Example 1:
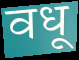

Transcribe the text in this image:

वधू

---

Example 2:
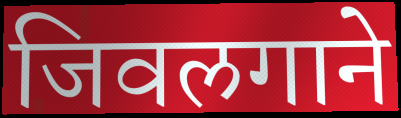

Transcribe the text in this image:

जिवलगाने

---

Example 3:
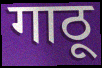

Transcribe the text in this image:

गाठू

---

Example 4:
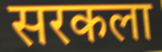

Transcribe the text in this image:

सरकला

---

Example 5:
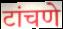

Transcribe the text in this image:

टांचणे